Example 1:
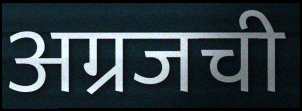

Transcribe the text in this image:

अग्रजची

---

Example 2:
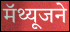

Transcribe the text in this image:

मॅथ्यूजने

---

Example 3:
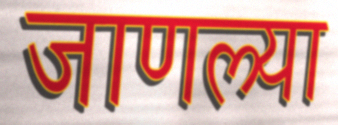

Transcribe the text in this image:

जाणल्या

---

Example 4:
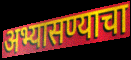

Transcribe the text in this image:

अभ्यासण्याचा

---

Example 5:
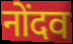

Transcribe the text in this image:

नोंदव